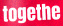
togethe